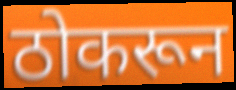
ठोकरून